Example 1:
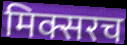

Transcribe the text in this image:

मिक्सरच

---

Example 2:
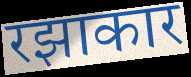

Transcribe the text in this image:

रझाकार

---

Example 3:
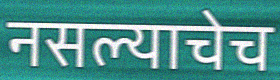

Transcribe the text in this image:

नसल्याचेच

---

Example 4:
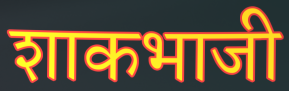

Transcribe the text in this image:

शाकभाजी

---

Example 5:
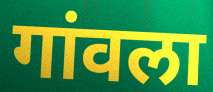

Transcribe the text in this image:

गांवला